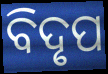
ବିଦୃପ